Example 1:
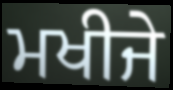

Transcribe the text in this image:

ਮਖੀਜੇ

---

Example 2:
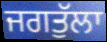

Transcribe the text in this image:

ਜਗਤੁੱਲਾ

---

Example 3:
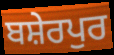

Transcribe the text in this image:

ਬਸ਼ੇਰਪੁਰ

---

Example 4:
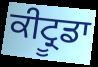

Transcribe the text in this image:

ਕੀਟ੍ਰੂਡਾ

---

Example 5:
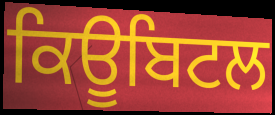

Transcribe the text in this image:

ਕਿਊਬਿਟਲ